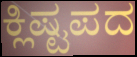
ಕ್ಲಿಷ್ಟಪದ